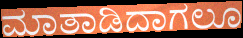
ಮಾತಾಡಿದಾಗಲೂ